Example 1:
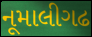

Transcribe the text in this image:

નૂમાલીગઢ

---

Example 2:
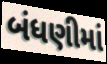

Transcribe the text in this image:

બંધણીમાં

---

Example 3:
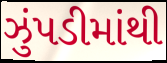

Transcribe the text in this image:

ઝુંપડીમાંથી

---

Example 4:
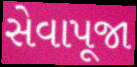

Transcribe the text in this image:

સેવાપૂજા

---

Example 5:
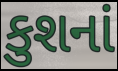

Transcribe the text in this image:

કુશનાં